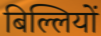
बिल्लियों